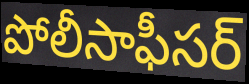
పోలీసాఫీసర్